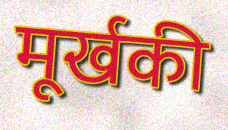
मूर्खकी